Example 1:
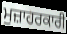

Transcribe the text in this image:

ਮੁਜ਼ਾਹਰਕਾਰੀ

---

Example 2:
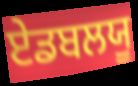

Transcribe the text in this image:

ਏਡਬਲਯੂ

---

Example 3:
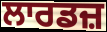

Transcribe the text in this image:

ਲਾਰਡਜ਼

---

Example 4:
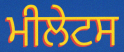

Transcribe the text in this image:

ਮੀਲੇਟਸ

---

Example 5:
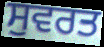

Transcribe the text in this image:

ਸੁਵਰਤ